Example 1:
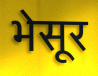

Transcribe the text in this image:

भेसूर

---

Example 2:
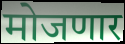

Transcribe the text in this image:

मोजणार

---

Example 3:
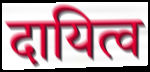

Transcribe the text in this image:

दायित्व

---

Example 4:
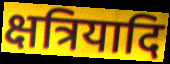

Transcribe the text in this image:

क्षत्रियादि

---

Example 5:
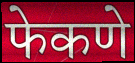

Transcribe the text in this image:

फेकणे